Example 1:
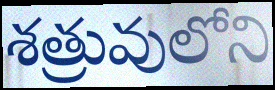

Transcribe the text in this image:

శత్రువులోని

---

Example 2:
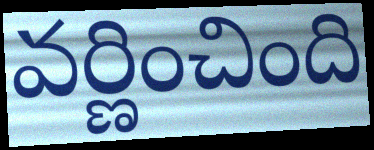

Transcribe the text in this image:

వర్ణించింది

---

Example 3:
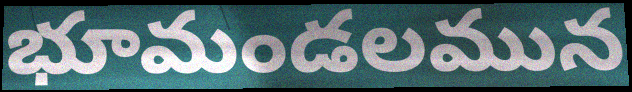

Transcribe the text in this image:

భూమండలమున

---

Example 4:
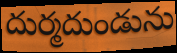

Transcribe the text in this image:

దుర్మదుండును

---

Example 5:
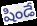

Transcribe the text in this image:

షిండే